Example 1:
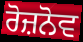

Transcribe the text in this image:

ਰੋਜ਼ਨੋਵ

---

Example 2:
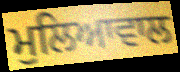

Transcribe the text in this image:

ਮੁਲਿਆਵਾਲ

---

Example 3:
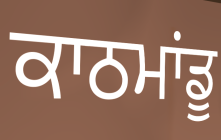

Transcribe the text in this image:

ਕਾਠਮਾਂਡੂ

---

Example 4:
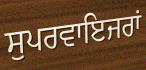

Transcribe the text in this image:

ਸੁਪਰਵਾਇਜਰਾਂ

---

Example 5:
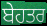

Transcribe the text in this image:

ਬੇਹਤਰ